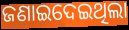
ଜଣାଇଦେଇଥିଲା